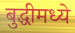
बुद्धीमध्ये